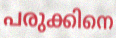
പരുക്കിനെ